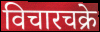
विचारचक्रे